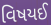
વિષયઈ